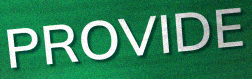
PROVIDE